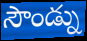
సౌండ్ను